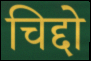
चिद्दो